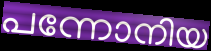
പന്നോനിയ